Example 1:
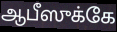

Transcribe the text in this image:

ஆபீஸுக்கே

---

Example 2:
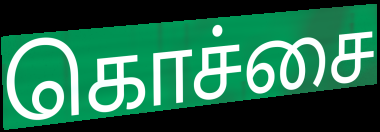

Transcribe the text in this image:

கொச்சை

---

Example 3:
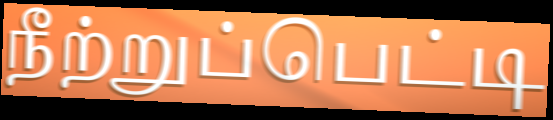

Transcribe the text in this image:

நீற்றுப்பெட்டி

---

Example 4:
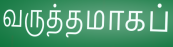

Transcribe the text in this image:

வருத்தமாகப்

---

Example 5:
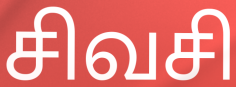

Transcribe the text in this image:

சிவசி